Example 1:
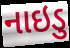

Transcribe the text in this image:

નાઇડુ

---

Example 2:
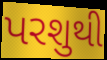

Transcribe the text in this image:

પરશુથી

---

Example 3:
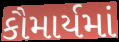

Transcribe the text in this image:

કૌમાર્યમાં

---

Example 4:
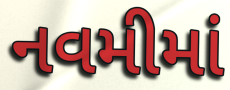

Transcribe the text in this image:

નવમીમાં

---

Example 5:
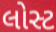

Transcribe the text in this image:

લોસ્ટ